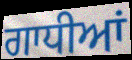
ਗਾਧੀਆਂ